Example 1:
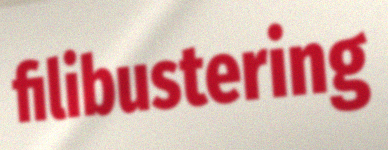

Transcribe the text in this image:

filibustering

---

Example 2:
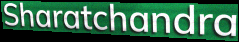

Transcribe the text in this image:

Sharatchandra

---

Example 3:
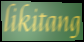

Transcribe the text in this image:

likitang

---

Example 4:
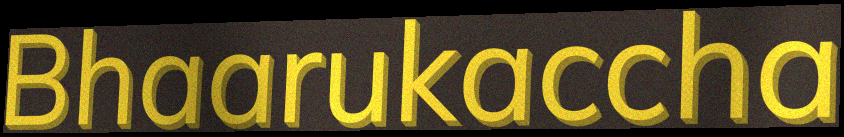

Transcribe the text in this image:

Bhaarukaccha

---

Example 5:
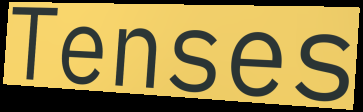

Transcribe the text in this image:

Tenses